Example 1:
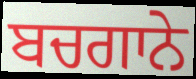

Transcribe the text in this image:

ਬਚਗਾਨੇ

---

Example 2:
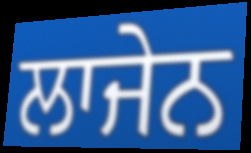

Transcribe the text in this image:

ਲਾਜੇਨ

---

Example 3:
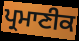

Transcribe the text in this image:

ਪ੍ਰਮਾਣੀਕ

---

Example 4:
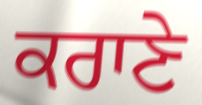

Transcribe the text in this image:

ਕਰਾਣੇ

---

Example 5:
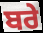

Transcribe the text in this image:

ਬਰੇ